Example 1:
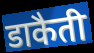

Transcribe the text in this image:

डाकैती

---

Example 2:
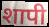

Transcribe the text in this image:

शापी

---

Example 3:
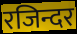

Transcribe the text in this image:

रजिन्दर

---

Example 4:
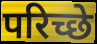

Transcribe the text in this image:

परिच्छे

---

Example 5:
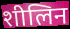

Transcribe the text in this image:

शीलिन